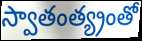
స్వాతంత్య్రంతో